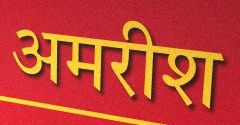
अमरीश